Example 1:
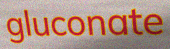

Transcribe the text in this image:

gluconate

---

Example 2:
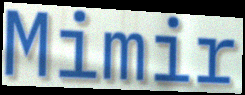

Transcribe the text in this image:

Mimir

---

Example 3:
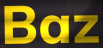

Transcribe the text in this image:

Baz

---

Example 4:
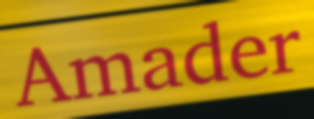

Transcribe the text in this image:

Amader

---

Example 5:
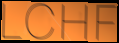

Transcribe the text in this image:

LCHF